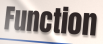
Function